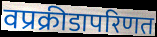
वप्रक्रीडापरिणत